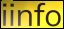
iinfo